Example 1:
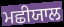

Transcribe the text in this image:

ਮਛੀਯਾਲ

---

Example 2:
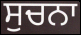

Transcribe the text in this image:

ਸੁਚਨਾ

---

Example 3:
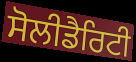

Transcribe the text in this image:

ਸੋਲੀਡੈਰਿਟੀ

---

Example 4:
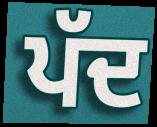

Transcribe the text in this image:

ਪੱਦ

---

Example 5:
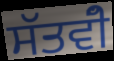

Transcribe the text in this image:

ਸੱਤਵੀਁ